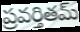
ప్రవర్తితమ్